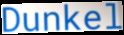
Dunkel